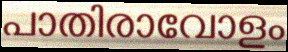
പാതിരാവോളം